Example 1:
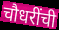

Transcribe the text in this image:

चौधरींची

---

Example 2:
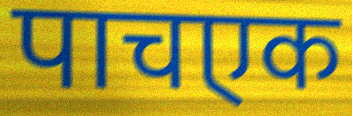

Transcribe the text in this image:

पाचएक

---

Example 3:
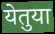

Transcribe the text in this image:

येतुया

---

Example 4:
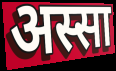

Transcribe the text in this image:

अस्सा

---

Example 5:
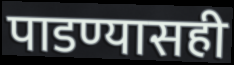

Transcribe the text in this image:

पाडण्यासही